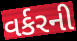
વર્કરની